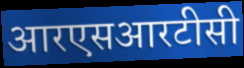
आरएसआरटीसी